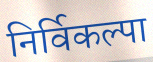
निर्विकल्पा